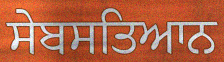
ਸੇਬਸਤਿਆਨ